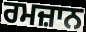
ਰਮਜ਼ਾਨ